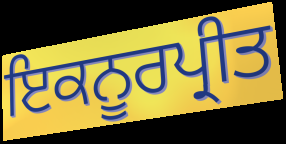
ਇਕਨੂਰਪ੍ਰੀਤ